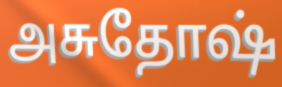
அசுதோஷ்